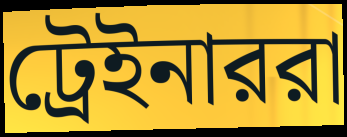
ট্রেইনাররা